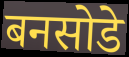
बनसोडे